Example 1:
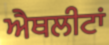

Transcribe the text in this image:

ਐਥਲੀਟਾਂ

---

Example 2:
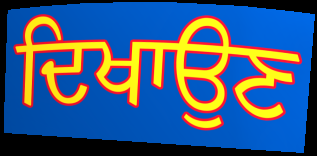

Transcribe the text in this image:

ਦਿਖਾਉਣ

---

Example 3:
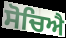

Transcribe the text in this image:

ਸੋਚਿਐ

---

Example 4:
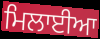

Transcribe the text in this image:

ਮਿਲਾਈਆ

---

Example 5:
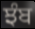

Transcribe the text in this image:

ਝੰਬ